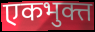
एकभुक्त